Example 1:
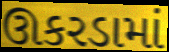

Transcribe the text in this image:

ઊકરડામાં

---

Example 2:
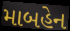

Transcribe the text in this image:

માબહેન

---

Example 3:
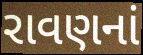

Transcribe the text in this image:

રાવણનાં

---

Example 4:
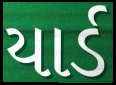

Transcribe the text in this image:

યાર્ડ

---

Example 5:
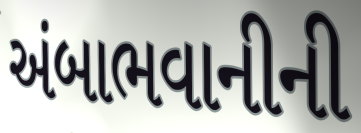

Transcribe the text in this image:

અંબાભવાનીની